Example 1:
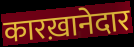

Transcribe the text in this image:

कारख़ानेदार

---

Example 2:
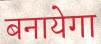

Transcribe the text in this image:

बनायेगा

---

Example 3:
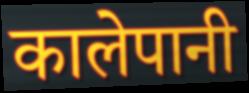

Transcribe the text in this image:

कालेपानी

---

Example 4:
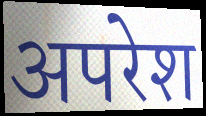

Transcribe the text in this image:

अपरेश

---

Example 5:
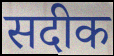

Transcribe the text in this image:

सदीक